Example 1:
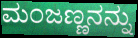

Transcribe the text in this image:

ಮಂಜಣ್ಣನನ್ನು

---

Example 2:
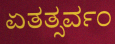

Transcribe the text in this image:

ಏತತ್ಸರ್ವಂ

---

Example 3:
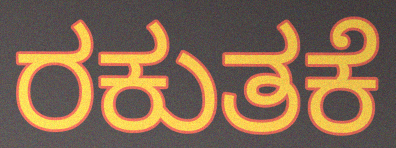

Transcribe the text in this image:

ರಕುತಕೆ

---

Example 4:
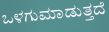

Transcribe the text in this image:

ಒಳಗುಮಾಡುತ್ತದೆ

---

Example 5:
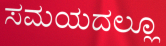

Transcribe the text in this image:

ಸಮಯದಲ್ಲೂ